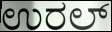
ಉರಲ್